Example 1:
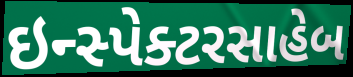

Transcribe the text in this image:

ઇન્સ્પેક્ટરસાહેબ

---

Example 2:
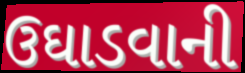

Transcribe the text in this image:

ઉઘાડવાની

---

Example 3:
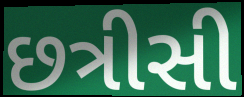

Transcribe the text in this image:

છત્રીસી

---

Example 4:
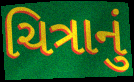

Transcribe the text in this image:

ચિત્રાનું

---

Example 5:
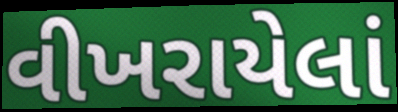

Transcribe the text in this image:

વીખરાયેલાં